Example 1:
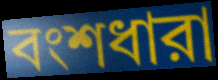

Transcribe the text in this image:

বংশধারা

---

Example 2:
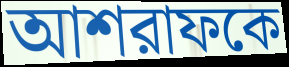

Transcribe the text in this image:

আশরাফকে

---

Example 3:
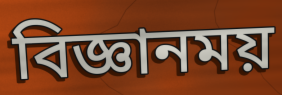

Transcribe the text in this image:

বিজ্ঞানময়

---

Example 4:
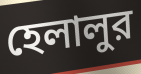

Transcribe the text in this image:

হেলালুর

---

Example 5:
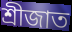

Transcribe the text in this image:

শ্রীজাত